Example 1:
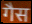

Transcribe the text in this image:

गैस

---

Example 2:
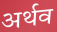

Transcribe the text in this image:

अर्थव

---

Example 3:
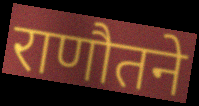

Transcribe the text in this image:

राणौतने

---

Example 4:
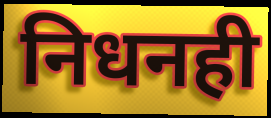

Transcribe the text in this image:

निधनही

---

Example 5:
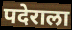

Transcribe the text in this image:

पदेराला